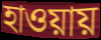
হাওয়ায়